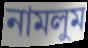
নামলুম